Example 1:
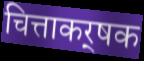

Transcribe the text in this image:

चित्ताकर्षक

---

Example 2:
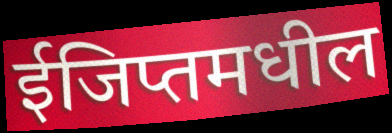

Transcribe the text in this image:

ईजिप्तमधील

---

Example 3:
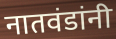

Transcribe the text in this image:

नातवंडांनी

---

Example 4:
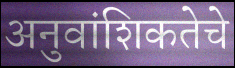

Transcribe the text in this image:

अनुवांशिकतेचे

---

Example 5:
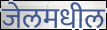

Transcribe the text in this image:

जेलमधील